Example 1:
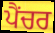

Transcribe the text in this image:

ਪੈਂਚਰ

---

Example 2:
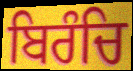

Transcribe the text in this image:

ਬਿਰੰਚਿ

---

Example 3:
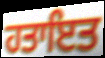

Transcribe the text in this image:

ਹਤਾਇਤ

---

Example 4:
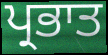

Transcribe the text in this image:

ਪ੍ਰਭਾਤ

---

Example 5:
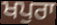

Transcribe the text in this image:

ਖਪੁਰਾ